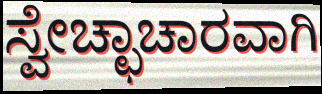
ಸ್ವೇಚ್ಛಾಚಾರವಾಗಿ